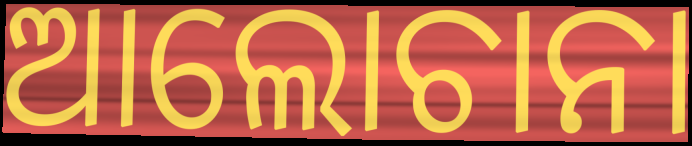
ଆଲୋଚାନା